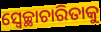
ସ୍ଵେଚ୍ଛାଚାରିତାକୁ